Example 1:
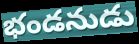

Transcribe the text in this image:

భండనుడు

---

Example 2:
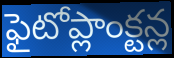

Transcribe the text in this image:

ఫైటోప్లాంక్టన్ల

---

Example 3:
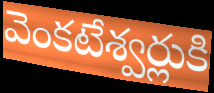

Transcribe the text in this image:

వెంకటేశ్వర్లుకి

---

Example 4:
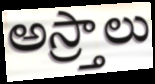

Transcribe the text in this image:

అస్ర్తాలు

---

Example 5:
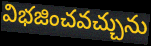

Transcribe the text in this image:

విభజించవచ్చును